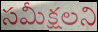
సమీక్షలని